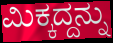
ಮಿಕ್ಕದ್ದನ್ನು